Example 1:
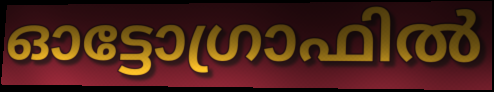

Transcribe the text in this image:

ഓട്ടോഗ്രാഫിൽ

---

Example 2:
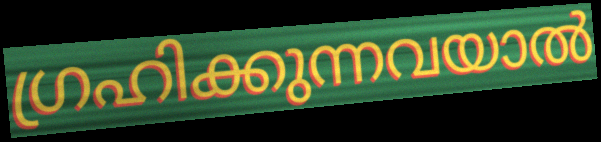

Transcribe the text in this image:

ഗ്രഹിക്കുന്നവയാൽ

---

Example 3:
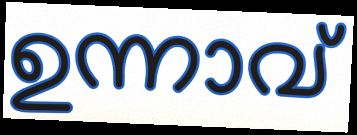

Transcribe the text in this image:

ഉന്നാവ്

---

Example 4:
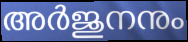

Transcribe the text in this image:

അർജുനനും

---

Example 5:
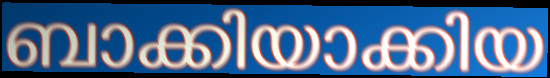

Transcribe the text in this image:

ബാക്കിയാക്കിയ